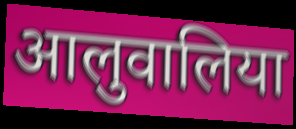
आलुवालिया